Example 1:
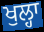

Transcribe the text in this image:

ਖੁਲ੍ਹਾ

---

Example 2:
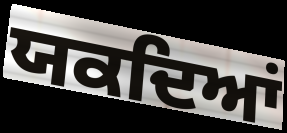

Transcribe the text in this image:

ਯਕਦਿਆਂ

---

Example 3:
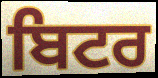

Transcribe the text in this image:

ਬਿਟਰ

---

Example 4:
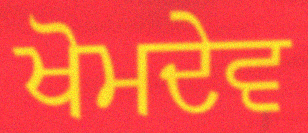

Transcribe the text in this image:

ਖੋਮਦੇਵ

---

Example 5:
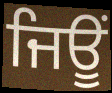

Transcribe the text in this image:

ਜਿਊਂ